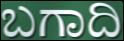
ಬಗಾದಿ